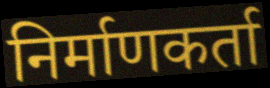
निर्माणकर्ता